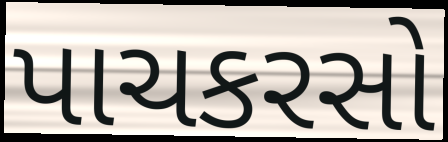
પાચકરસો